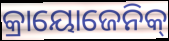
କ୍ରାୟୋଜେନିକ୍